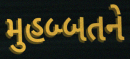
મુહબ્બતને